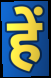
हें